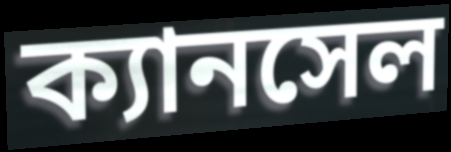
ক্যানসেল